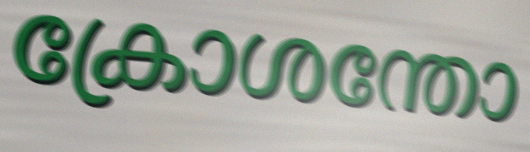
ക്രോശന്തോ